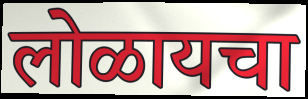
लोळायचा